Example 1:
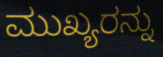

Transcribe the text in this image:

ಮುಖ್ಯರನ್ನು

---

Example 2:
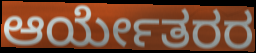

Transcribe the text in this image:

ಆರ್ಯೇತರರ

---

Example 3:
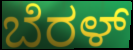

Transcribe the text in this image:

ಬೆರಳ್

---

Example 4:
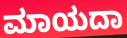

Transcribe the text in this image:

ಮಾಯದಾ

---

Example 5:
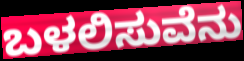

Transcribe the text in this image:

ಬಳಲಿಸುವೆನು